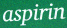
aspirin